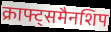
क्राफ्ट्समैनशिप